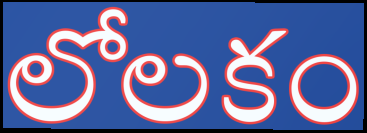
లోలకం